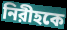
নিরীহকে